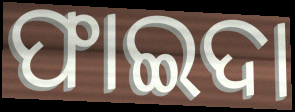
ଫାଇଦା